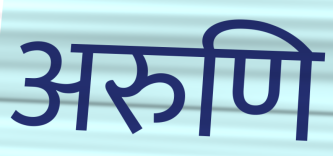
अरुणि